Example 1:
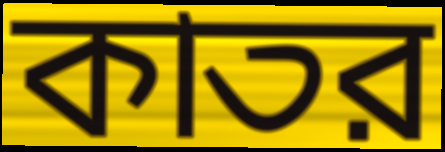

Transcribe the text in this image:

কাতর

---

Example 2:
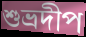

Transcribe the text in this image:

শুভ্রদীপ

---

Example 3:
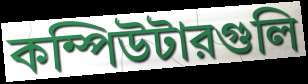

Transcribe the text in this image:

কম্পিউটারগুলি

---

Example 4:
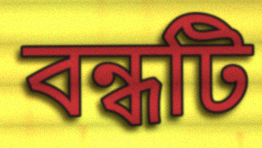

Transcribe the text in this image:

বন্ধটি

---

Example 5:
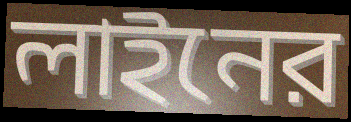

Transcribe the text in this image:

লাইনের